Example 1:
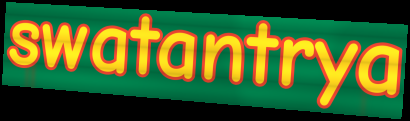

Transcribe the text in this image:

swatantrya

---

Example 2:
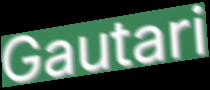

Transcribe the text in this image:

Gautari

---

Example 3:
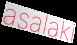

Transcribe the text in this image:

asalaki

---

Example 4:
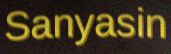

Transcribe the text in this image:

Sanyasin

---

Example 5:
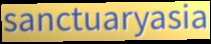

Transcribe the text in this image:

sanctuaryasia